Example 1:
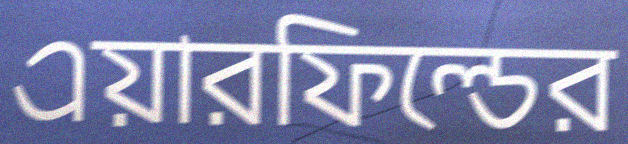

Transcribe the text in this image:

এয়ারফিল্ডের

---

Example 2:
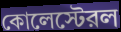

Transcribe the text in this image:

কোলেস্টেরল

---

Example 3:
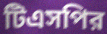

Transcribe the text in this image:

টিএসপির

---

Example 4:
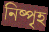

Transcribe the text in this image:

নিষ্পৃহ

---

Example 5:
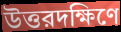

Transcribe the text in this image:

উত্তরদক্ষিণে